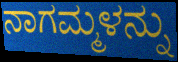
ನಾಗಮ್ಮಳನ್ನು